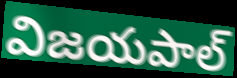
విజయపాల్